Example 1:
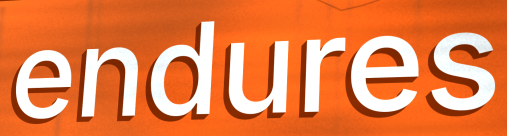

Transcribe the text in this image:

endures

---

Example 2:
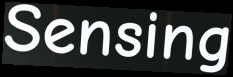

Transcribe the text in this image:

Sensing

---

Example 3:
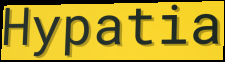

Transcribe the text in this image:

Hypatia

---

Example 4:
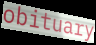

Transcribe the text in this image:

obituary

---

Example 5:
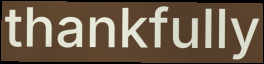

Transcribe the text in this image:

thankfully